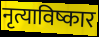
नृत्याविष्कार